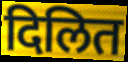
दिलित